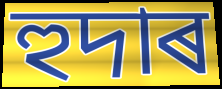
হুদাৰ